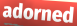
adorned